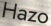
Hazo